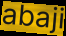
abaji